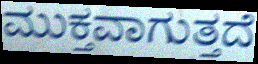
ಮುಕ್ತವಾಗುತ್ತದೆ